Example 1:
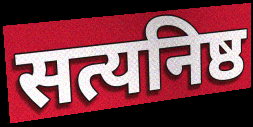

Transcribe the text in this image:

सत्यनिष्ठ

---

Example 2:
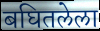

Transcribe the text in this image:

बघितलेला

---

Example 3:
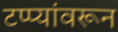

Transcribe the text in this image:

टप्प्यांवरून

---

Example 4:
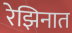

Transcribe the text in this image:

रेझिनात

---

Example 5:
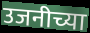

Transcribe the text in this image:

उजनीच्या